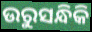
ଉରୁସନ୍ଧିକି